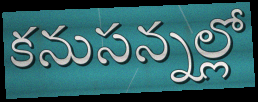
కనుసన్నల్లో